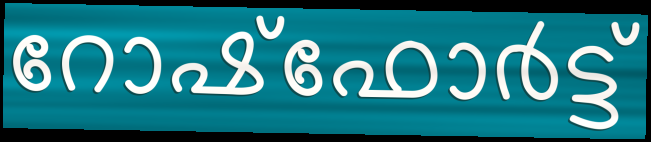
റോഷ്ഫോർട്ട്